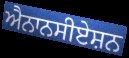
ਐਨਾਨਸੀਏਸ਼ਨ